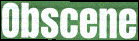
Obscene